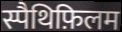
स्पैथिफ़िलम